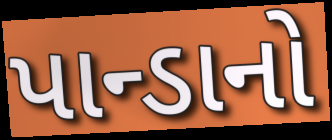
પાન્ડાનો